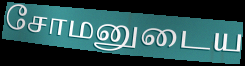
சோமனுடைய